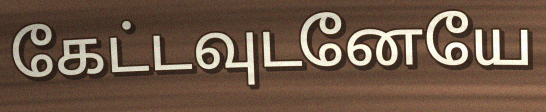
கேட்டவுடனேயே